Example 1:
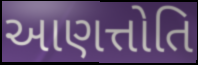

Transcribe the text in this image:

આણત્તોતિ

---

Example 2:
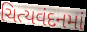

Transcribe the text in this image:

ચિત્યવંદનમાં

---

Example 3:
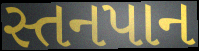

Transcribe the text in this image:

સ્તનપાન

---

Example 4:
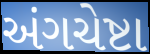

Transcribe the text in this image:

અંગચેષ્ટા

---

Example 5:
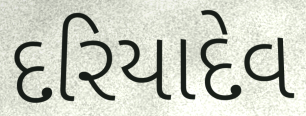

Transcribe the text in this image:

દરિયાદેવ